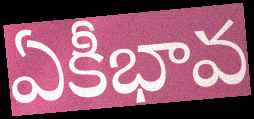
ఏకీభావ